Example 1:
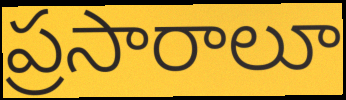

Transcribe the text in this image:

ప్రసారాలూ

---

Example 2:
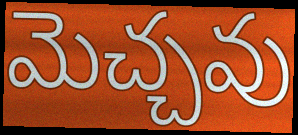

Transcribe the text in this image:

మెచ్చవు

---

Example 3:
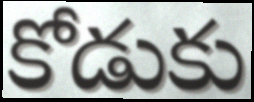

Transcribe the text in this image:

కోడుకు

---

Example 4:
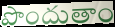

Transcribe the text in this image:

పొందుతాం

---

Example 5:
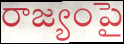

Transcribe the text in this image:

రాజ్యంపై